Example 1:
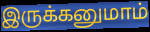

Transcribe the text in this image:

இருக்கனுமாம்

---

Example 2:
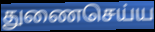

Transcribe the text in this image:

துணைசெய்ய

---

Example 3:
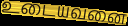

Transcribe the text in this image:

உடையவனை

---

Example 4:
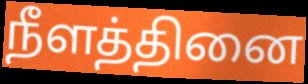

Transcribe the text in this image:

நீளத்தினை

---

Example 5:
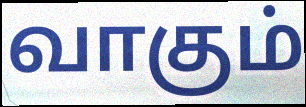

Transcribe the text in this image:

வாகும்